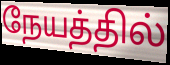
நேயத்தில்